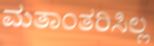
ಮತಾಂತರಿಸಿಲ್ಲ